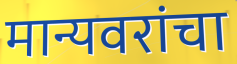
मान्यवरांचा